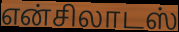
என்சிலாடஸ்